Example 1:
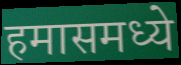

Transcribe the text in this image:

हमासमध्ये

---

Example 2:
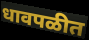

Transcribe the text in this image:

धावपळीत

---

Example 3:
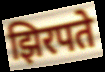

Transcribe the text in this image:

झिरपते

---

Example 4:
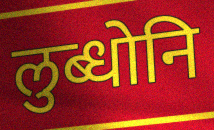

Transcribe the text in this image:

लुब्धोनि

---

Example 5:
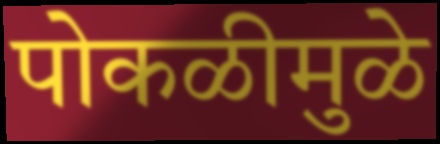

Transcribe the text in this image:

पोकळीमुळे